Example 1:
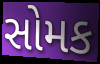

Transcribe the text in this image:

સોમક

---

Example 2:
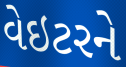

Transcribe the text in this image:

વેઇટરને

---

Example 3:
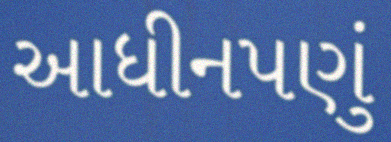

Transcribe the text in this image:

આધીનપણું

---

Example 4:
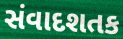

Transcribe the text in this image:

સંવાદશતક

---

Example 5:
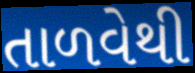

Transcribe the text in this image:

તાળવેથી